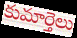
కుమార్తెలు